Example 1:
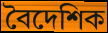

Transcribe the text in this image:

বৈদেশিক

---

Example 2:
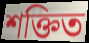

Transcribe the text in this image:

শক্তিত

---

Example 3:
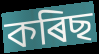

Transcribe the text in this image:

কৰিছ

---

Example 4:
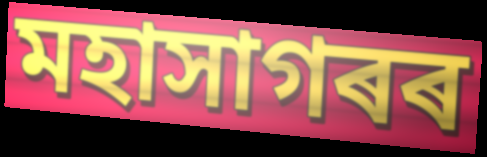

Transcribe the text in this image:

মহাসাগৰৰ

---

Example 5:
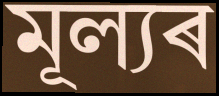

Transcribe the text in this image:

মূল্য়ৰ